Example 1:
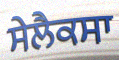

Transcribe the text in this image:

ਸੇਲੈਕਸਾ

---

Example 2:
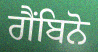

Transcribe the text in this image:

ਗੈਂਬਿਨੋ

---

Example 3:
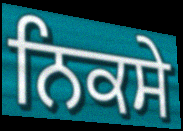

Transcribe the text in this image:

ਨਿਕਸੇ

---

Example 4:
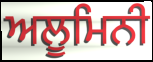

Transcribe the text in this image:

ਅਲੂਮਿਨੀ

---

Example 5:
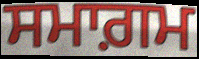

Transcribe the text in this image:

ਸਮਾਗ਼ਮ